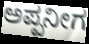
ಅಪ್ಪನೀಗ